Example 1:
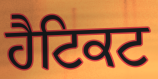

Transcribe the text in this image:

ਹੈਟਿਕਟ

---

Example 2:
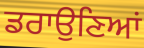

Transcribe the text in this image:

ਡਰਾਉਣਿਆਂ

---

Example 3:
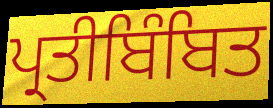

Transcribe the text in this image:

ਪ੍ਰਤੀਬਿੰਬਿਤ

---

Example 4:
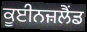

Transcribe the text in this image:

ਕੂਈਨਜ਼ਲੈਂਡ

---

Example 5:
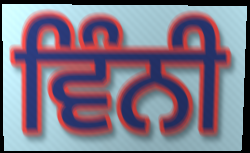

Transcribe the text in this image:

ਵਿੰਨੀ